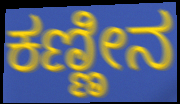
ಕಣ್ಣೀನ